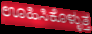
ಊಹಿಸಿಕೊಳ್ಳುತ್ತ